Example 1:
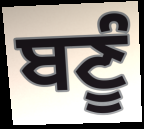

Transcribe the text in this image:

ਬਣੂੰ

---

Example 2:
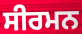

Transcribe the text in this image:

ਸੀਰਮਨ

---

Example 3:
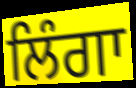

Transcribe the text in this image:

ਲਿੰਗਾ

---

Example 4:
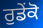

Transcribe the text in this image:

ਰੁਡੇਂਕੋ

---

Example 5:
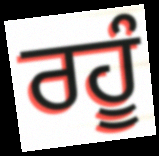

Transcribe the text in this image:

ਰਹੂੰ